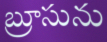
బ్రూసును